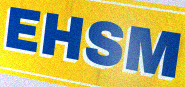
EHSM